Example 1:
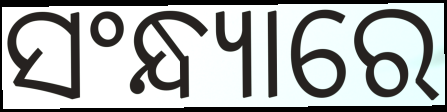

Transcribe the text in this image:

ସଂନ୍ଧ୍ୟାରେ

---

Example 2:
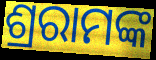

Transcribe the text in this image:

ଶ୍ରରାମଙ୍କ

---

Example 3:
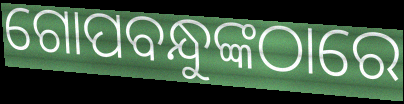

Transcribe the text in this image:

ଗୋପବନ୍ଧୁଙ୍କଠାରେ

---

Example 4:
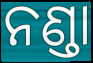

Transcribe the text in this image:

ନଣ୍ଡା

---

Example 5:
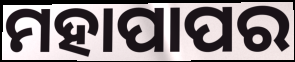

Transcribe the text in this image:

ମହାପାପର